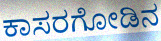
ಕಾಸರಗೋಡಿನ